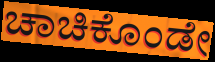
ಚಾಚಿಕೊಂಡೇ